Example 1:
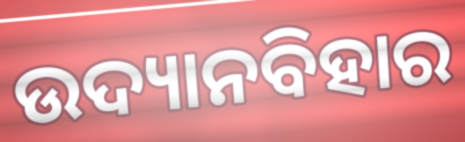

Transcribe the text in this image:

ଉଦ୍ୟାନବିହାର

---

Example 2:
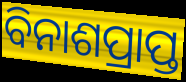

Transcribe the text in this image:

ବିନାଶପ୍ରାପ୍ତ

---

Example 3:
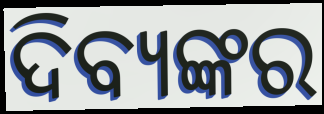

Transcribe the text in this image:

ଦିବ୍ୟଙ୍କର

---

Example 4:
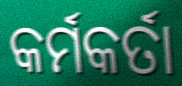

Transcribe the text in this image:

କର୍ମକର୍ତା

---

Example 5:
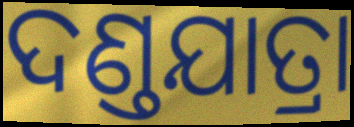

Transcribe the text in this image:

ଦଣ୍ଡଯାତ୍ରା